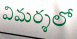
విమర్శలో